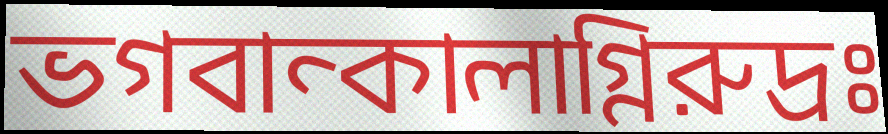
ভগবান্কালাগ্নিরুদ্রঃ